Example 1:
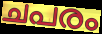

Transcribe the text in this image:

ചപരം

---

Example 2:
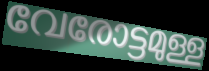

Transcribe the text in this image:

വേരോട്ടമുള്ള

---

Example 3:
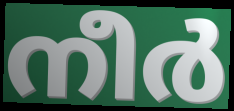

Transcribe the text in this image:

നീർ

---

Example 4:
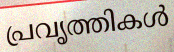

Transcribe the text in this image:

പ്രവൃത്തികൾ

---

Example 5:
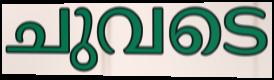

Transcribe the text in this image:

ചുവടെ